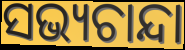
ସଭ୍ୟଚାନ୍ଦା